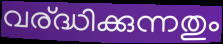
വര്ദ്ധിക്കുന്നതും